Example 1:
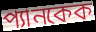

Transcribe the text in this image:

প্যানকেক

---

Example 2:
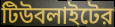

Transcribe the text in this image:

টিউবলাইটের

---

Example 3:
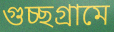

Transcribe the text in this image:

গুচ্ছগ্রামে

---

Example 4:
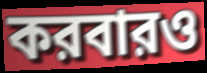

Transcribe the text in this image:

করবারও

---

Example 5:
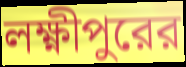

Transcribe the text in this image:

লক্ষ্ণীপুরের